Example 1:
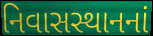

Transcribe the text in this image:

નિવાસસ્થાનનાં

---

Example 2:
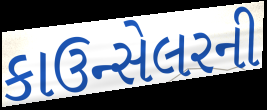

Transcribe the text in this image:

કાઉન્સેલરની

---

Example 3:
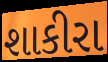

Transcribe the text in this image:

શાકીરા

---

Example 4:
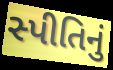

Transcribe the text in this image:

સ્પીતિનું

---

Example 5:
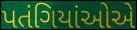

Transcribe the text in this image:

પતંગિયાંઓએ